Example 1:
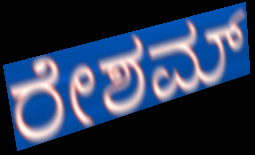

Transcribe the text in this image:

ರೇಶಮ್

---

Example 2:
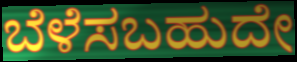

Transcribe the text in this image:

ಬೆಳೆಸಬಹುದೇ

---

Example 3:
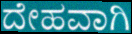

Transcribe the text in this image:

ದೇಹವಾಗಿ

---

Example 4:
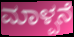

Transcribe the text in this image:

ಮಾಳ್ಪನೆ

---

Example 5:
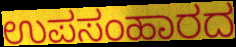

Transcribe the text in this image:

ಉಪಸಂಹಾರದ